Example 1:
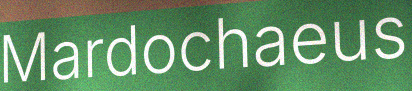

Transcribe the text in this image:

Mardochaeus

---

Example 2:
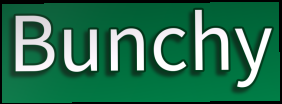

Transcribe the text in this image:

Bunchy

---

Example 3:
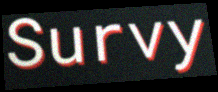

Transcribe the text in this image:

Survy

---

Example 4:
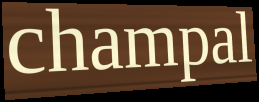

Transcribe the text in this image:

champal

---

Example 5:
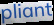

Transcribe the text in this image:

pliant